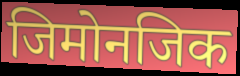
जिमोनजिक